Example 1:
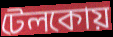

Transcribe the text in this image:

টেলকোয়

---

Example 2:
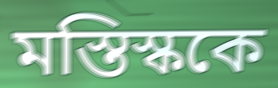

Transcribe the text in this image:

মস্তিস্ককে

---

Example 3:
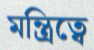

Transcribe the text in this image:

মন্ত্রিত্বে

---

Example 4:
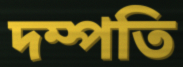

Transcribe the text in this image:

দম্পতি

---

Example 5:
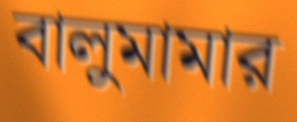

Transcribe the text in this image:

বালুমামার